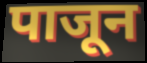
पाजून